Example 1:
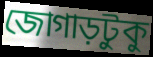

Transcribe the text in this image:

জোগাড়টুকু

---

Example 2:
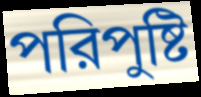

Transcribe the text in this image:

পরিপুষ্টি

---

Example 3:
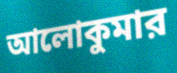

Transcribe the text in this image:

আলোকুমার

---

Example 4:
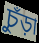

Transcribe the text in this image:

চুঁড়া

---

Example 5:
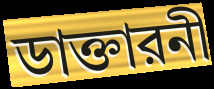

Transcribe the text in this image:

ডাক্তারনী